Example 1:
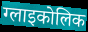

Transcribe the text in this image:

ग्लाइकोलिक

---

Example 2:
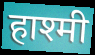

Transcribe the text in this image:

हाश्मी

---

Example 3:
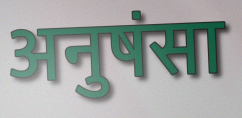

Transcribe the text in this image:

अनुषंसा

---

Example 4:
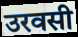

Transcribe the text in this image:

उरवसी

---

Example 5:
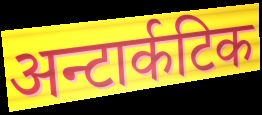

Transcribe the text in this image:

अन्टार्कटिक